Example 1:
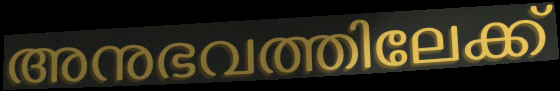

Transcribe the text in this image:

അനുഭവത്തിലേക്ക്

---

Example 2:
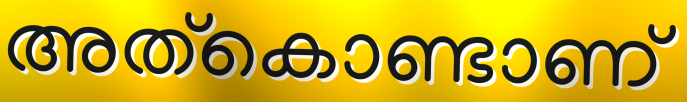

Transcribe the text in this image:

അത്കൊണ്ടാണ്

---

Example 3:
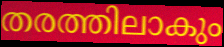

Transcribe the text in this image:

തരത്തിലാകും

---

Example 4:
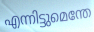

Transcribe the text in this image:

എന്നിട്ടുമെന്തേ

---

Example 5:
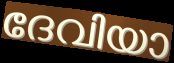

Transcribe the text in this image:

ദേവിയാ